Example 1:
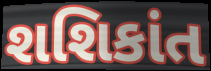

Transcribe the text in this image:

શશિકાંત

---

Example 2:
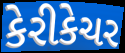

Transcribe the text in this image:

કેરીકેચર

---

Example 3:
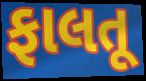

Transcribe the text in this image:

ફાલતૂ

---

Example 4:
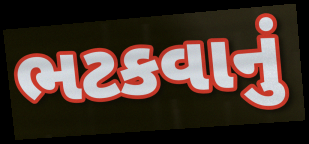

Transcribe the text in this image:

ભટકવાનું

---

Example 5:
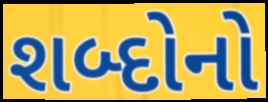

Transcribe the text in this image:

શબ્દોનો